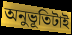
অনুভূতিটাই